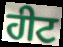
ਹੀਟ